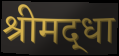
श्रीमद्धा